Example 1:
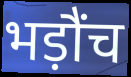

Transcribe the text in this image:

भड़ौंच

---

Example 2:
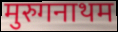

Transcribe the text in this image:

मुरुगनाथम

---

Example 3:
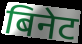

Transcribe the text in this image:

बिनेट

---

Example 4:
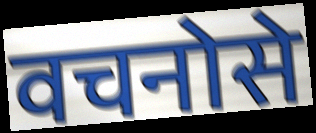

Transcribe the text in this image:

वचनोसे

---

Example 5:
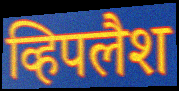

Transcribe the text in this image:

व्हिपलैश